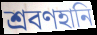
শ্রবণহানি